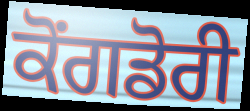
ਕੋਂਗਡੋਰੀ